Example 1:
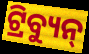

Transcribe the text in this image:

ଟ୍ରିବ୍ୟୁନ୍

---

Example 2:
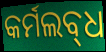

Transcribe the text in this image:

କର୍ମଲବ୍‌ଧ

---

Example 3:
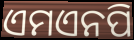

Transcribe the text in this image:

ଏମଏନପି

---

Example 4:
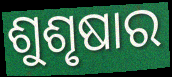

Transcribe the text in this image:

ଶୁଶୃଷାର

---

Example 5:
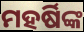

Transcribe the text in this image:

ମହର୍ଷିଙ୍କ